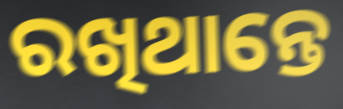
ରଖିଥାନ୍ତେ